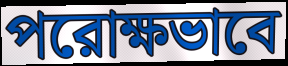
পরোক্ষভাবে